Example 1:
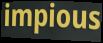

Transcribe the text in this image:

impious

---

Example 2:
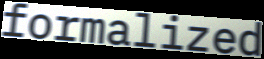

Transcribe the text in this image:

formalized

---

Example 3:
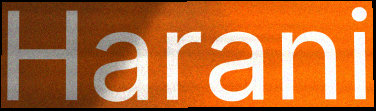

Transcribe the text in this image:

Harani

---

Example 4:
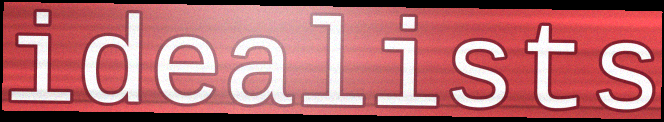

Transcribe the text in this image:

idealists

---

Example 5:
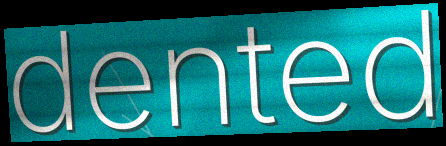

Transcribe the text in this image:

dented